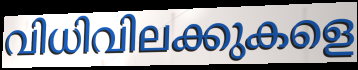
വിധിവിലക്കുകളെ